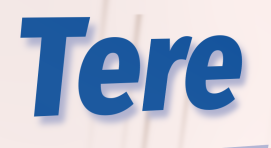
Tere